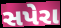
સપેરા